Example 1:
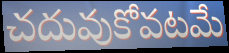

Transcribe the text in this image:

చదువుకోవటమే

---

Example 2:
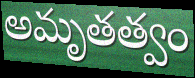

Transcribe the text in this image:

అమృతత్వం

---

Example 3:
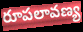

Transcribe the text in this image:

రూపలావణ్య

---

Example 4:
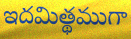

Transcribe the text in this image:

ఇదమిత్థముగా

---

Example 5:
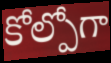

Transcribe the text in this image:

కోల్పోగా